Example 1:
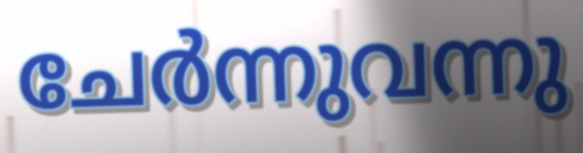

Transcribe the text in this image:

ചേർന്നുവന്നു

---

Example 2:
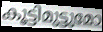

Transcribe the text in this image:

കൂട്ടിമുട്ടുമോ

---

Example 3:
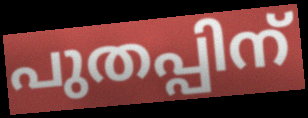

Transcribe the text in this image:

പുതപ്പിന്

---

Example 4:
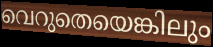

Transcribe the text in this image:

വെറുതെയെങ്കിലും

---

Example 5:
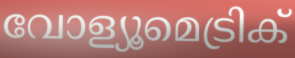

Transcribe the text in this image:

വോള്യൂമെട്രിക്